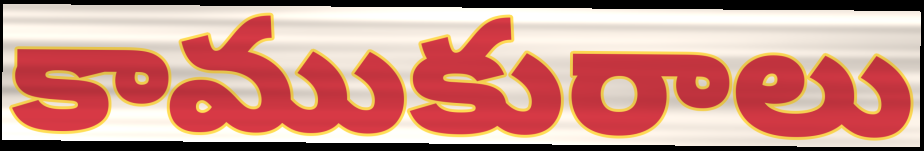
కాముకురాలు